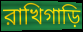
রাখিগাড়ি